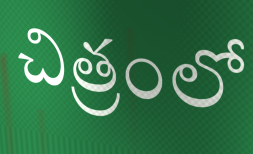
చిత్రంలో